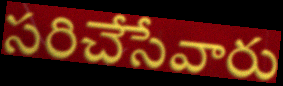
సరిచేసేవారు